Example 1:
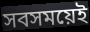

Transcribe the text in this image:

সবসময়েই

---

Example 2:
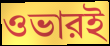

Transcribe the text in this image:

ওভারই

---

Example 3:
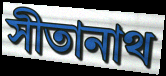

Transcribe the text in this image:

সীতানাথ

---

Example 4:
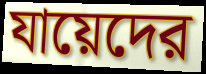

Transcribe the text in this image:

যায়েদের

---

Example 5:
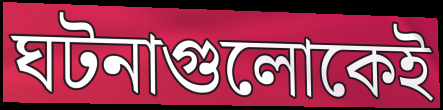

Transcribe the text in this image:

ঘটনাগুলোকেই